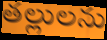
తల్లులను